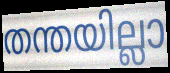
തന്തയില്ലാ